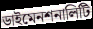
ডাইমেনশনালিটি